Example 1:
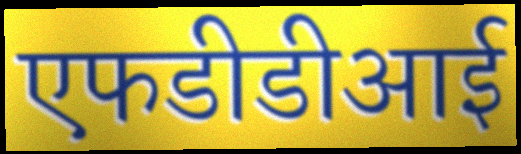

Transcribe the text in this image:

एफडीडीआई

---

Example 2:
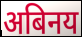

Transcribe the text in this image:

अबिनय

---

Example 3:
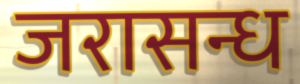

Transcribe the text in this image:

जरासन्ध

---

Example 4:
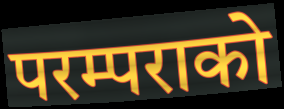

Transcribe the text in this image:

परम्पराको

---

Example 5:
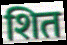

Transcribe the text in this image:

शित